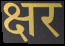
क्षर